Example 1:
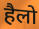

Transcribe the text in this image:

हैलो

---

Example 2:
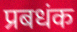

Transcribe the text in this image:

प्रबधंक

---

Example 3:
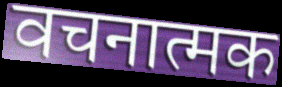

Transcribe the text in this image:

वचनात्मक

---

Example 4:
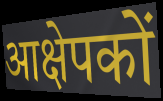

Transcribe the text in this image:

आक्षेपकों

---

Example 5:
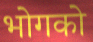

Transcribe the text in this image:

भोगको